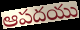
ఆపదయు